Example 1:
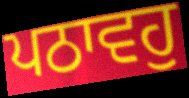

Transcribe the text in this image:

ਪਠਾਵਹੁ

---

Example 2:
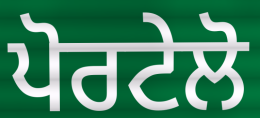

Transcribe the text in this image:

ਪੋਰਟੇਲੋ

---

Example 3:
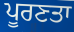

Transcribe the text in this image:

ਪੂਰਣਤਾ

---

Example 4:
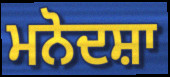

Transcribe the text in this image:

ਮਨੋਦਸ਼ਾ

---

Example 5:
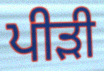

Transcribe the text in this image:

ਪੀੜੀ